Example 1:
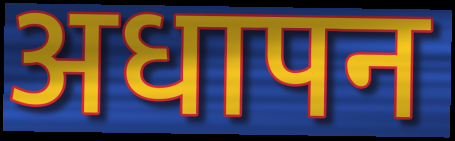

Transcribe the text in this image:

अधापन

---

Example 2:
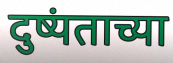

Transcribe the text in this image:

दुष्यंताच्या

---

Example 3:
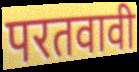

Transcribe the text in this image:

परतवावी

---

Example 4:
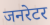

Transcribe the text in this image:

जनरेटर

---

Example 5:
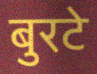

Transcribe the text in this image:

बुरटे